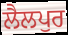
ਲੈਲਪੁਰ